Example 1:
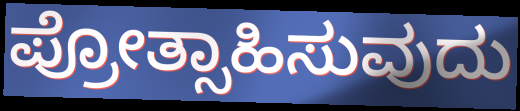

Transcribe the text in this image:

ಪ್ರೋತ್ಸಾಹಿಸುವುದು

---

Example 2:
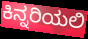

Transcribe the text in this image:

ಕಿನ್ನರಿಯಲಿ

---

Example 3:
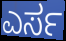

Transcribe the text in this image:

ಎರ್ಸ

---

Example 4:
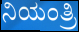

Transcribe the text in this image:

ನಿಯಂತ್ರಿ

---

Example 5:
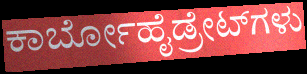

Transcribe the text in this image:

ಕಾರ್ಬೋಹೈಡ್ರೇಟ್‌ಗಳು